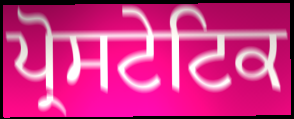
ਪ੍ਰੋਸਟੇਟਿਕ